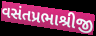
વસંતપ્રભાશ્રીજી